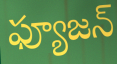
ఫ్యూజన్